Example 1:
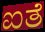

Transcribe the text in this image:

ಐತೆ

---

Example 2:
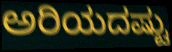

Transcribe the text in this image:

ಅರಿಯದಷ್ಟು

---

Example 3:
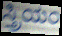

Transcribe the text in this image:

ಸ್ತ್ರಿಯಂ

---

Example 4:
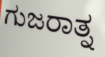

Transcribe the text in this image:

ಗುಜರಾತ್ನ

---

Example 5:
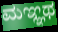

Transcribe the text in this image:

ಮಞ್ಞಥ